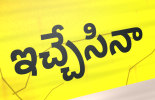
ఇచ్చేసినా